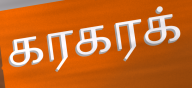
கரகரக்